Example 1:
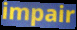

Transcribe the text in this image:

impair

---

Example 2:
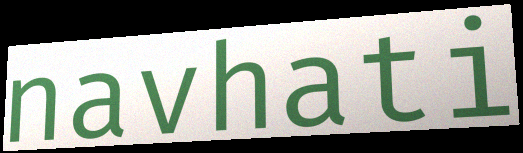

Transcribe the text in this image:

navhati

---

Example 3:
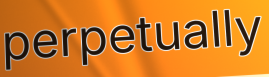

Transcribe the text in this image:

perpetually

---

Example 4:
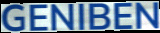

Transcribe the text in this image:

GENIBEN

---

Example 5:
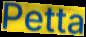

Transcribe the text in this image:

Petta